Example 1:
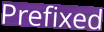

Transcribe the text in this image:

Prefixed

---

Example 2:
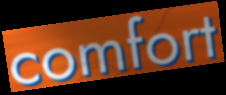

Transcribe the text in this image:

comfort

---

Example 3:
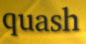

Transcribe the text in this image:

quash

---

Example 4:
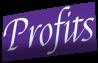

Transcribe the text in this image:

Profits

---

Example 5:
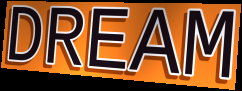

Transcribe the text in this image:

DREAM